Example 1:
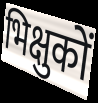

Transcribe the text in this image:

भिक्षुकों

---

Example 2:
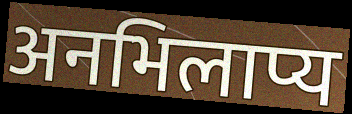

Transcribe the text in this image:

अनभिलाप्य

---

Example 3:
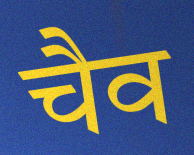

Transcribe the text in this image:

चैव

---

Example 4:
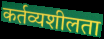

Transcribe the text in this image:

कर्तव्यशीलता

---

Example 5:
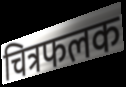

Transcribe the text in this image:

चित्रफलक